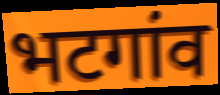
भटगांव